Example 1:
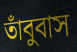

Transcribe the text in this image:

তাঁবুবাস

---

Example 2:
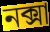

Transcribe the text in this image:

নক্সা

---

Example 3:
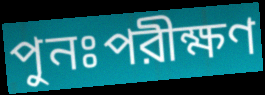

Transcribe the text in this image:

পুনঃপরীক্ষণ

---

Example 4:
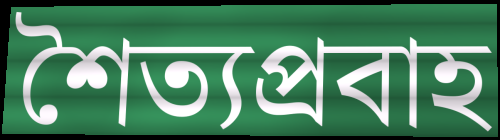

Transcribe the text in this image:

শৈত্যপ্রবাহ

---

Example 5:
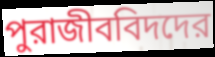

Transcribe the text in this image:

পুরাজীববিদদের